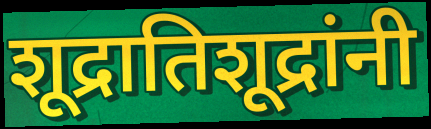
शूद्रातिशूद्रांनी